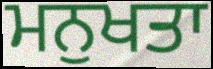
ਮਨੁਖਤਾ